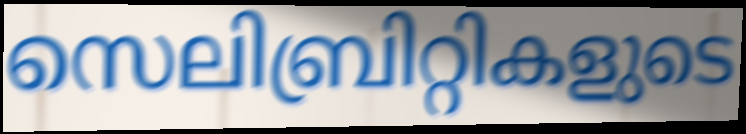
സെലിബ്രിറ്റികളുടെ